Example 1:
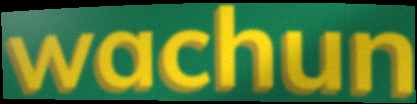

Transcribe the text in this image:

wachun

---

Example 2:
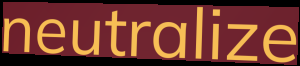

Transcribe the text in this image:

neutralize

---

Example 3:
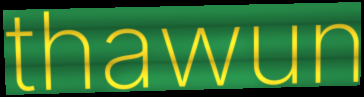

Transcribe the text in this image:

thawun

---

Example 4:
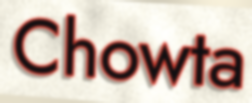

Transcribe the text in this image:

Chowta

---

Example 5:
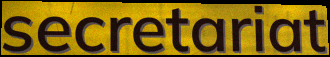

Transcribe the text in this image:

secretariat